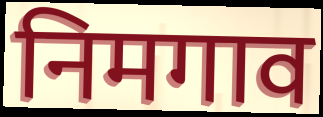
निमगाव